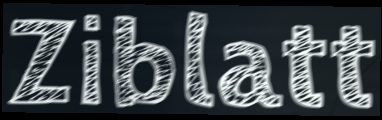
Ziblatt